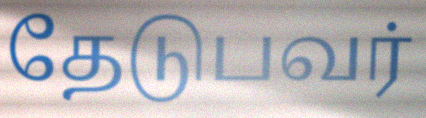
தேடுபவர்